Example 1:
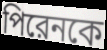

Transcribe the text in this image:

পিরেনকে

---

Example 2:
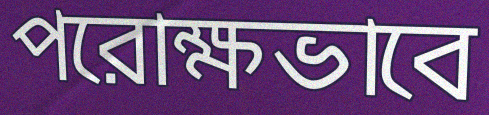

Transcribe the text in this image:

পরোক্ষভাবে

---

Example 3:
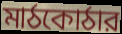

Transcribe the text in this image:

মাঠকোঠার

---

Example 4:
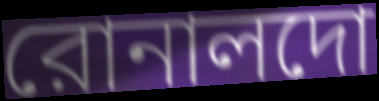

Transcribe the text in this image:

রোনালদো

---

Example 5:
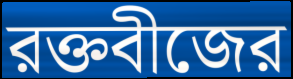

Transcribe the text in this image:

রক্তবীজের